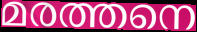
മരത്തനെ